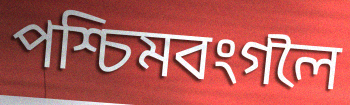
পশ্চিমবংগলৈ